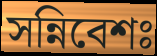
সন্নিবেশঃ